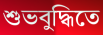
শুভবুদ্ধিতে